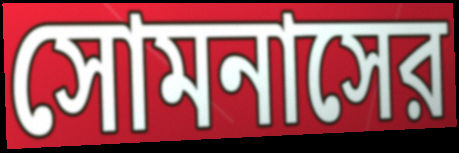
সোমনাসের